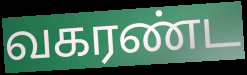
வகரண்ட